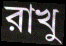
রাখু